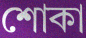
শোকা